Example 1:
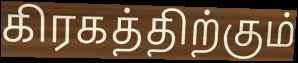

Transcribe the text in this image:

கிரகத்திற்கும்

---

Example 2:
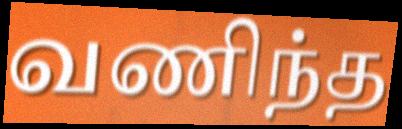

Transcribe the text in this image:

வணிந்த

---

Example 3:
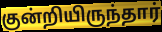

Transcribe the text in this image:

குன்றியிருந்தார்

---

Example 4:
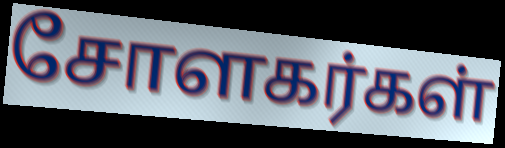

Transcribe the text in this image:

சோளகர்கள்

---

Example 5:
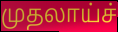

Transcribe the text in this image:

முதலாய்ச்